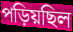
পড়িয়ছিল